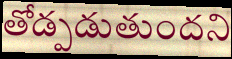
తోడ్పడుతుందని